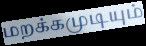
மறக்கமுடியும்